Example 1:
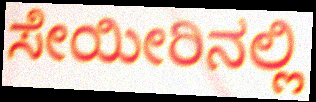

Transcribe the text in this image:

ಸೇಯೀರಿನಲ್ಲಿ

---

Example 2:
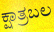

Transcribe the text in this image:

ಕ್ಷಾತ್ರಬಲ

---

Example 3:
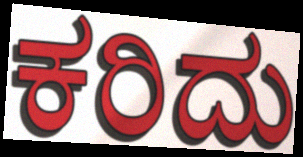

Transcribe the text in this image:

ಕರಿದು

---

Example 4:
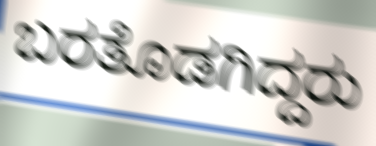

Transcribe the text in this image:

ಬರತೊಡಗಿದ್ದರು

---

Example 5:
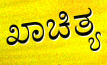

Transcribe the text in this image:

ಖಾಚಿತ್ಯ